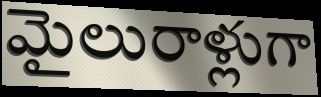
మైలురాళ్లుగా